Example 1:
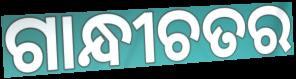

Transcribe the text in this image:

ଗାନ୍ଧୀଚତର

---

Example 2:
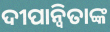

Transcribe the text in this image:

ଦୀପାନ୍ୱିତାଙ୍କ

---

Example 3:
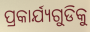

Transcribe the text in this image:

ପ୍ରକାର୍ଯ୍ୟଗୁଡିକୁ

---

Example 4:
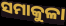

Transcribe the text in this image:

ସମାକୁଳା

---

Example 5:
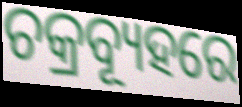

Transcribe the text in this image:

ଚକ୍ରବ୍ୟୂହରେ